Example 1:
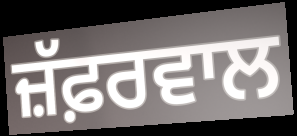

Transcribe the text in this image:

ਜ਼ੱਫ਼ਰਵਾਲ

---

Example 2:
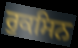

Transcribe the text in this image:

ਰੁਕਸਿਨ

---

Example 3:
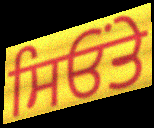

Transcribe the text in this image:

ਸਿਓਂਤੇ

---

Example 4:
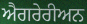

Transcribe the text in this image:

ਐਗਰੇਰੀਅਨ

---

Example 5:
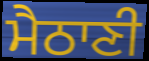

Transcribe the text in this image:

ਮੈਠਾਣੀ